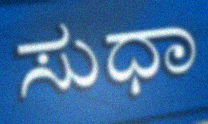
ಸುಧಾ